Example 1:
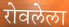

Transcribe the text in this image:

रोवलेला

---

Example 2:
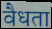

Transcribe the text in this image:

वैधता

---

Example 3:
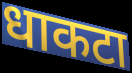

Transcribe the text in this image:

धाकटा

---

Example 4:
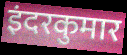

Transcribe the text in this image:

इंदरकुमार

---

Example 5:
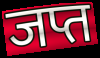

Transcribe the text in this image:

जप्त